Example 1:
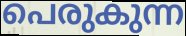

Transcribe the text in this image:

പെരുകുന്ന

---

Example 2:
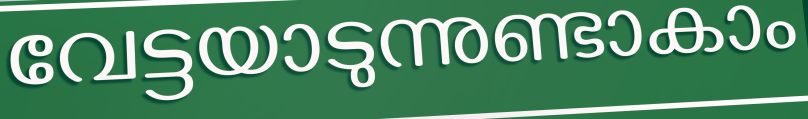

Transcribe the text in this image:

വേട്ടയാടുന്നുണ്ടാകാം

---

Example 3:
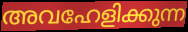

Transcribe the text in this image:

അവഹേളിക്കുന്ന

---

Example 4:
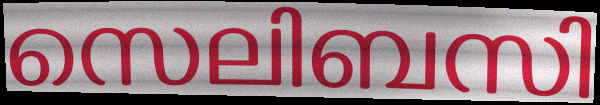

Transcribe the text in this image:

സെലിബസി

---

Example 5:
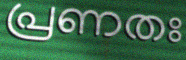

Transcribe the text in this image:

പ്രണതഃ